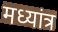
मध्यांत्र